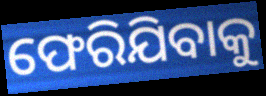
ଫେରିଯିବାକୁ